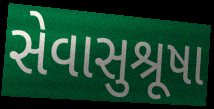
સેવાસુશ્રૂષા